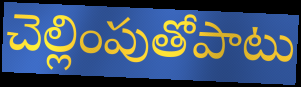
చెల్లింపుతోపాటు